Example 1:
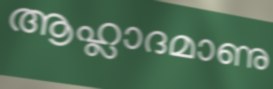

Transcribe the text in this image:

ആഹ്ലാദമാണു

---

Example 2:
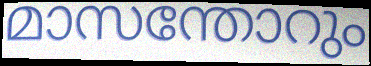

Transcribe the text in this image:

മാസന്തോറും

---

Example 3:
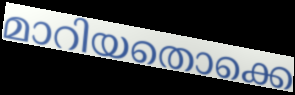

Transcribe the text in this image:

മാറിയതൊക്കെ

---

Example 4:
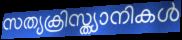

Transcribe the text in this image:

സത്യക്രിസ്ത്യാനികൾ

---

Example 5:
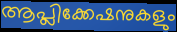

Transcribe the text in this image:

ആപ്ലിക്കേഷനുകളും